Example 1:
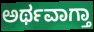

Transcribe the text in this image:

ಅರ್ಥವಾಗ್ತಾ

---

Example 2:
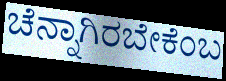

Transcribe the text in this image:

ಚೆನ್ನಾಗಿರಬೇಕೆಂಬ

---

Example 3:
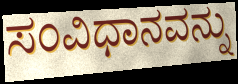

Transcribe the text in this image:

ಸಂವಿಧಾನವನ್ನು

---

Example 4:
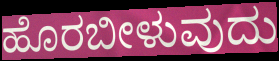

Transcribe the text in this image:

ಹೊರಬೀಳುವುದು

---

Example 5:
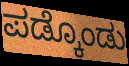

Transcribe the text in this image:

ಪಡ್ಕೊಂಡು